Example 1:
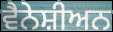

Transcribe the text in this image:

ਵੈਨੇਸ਼ੀਅਨ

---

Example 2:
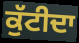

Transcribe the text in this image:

ਕੁੱਟੀਦਾ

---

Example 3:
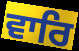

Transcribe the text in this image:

ਵਾਰਿ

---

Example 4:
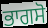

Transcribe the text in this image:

ਭਾਗਸੋ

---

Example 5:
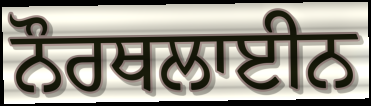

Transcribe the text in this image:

ਨੌਰਥਲਾਈਨ